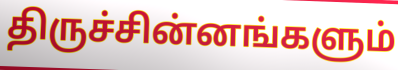
திருச்சின்னங்களும்